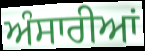
ਅੰਸਾਰੀਆਂ